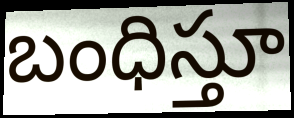
బంధిస్తూ